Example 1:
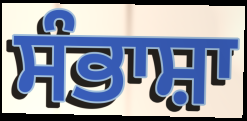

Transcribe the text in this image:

ਸੰਭਾਸ਼ਾ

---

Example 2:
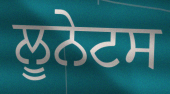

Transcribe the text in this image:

ਲੂਨੇਟਸ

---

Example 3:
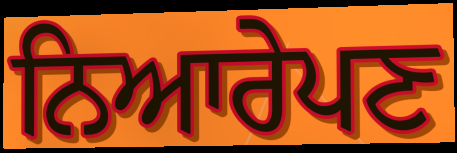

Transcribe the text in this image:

ਨਿਆਰੇਪਣ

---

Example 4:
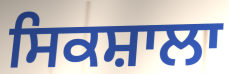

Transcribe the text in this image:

ਸਿਕਸ਼ਾਲਾ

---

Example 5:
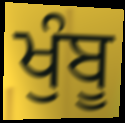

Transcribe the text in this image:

ਖੁੰਬੂ